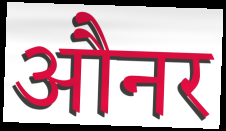
औनर